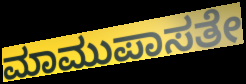
ಮಾಮುಪಾಸತೇ